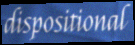
dispositional